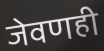
जेवणही